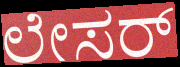
ಲೇಸರ್